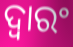
ଦ୍ୱାରଂ